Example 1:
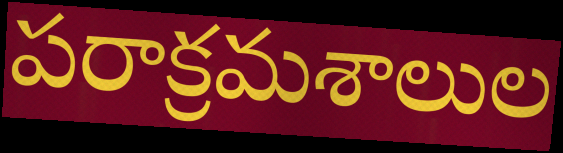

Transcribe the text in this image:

పరాక్రమశాలుల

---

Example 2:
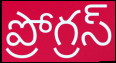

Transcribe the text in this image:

ప్రోగ్రస్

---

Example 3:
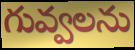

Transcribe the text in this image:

గువ్వలను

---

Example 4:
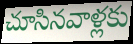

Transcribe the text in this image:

చూసినవాళ్లకు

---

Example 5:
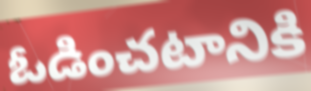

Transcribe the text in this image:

ఓడించటానికి